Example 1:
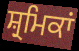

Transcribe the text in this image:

ਸ਼੍ਰਮਿਕਾਂ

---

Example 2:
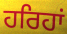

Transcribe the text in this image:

ਹਰਿਹਾਂ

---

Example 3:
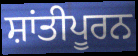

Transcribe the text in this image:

ਸ਼ਾਂਤੀਪੂਰਨ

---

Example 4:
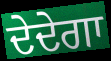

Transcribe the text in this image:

ਦੇਦੇਗਾ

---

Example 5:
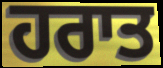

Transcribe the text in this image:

ਹਰਾਤ